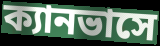
ক্যানভাসে